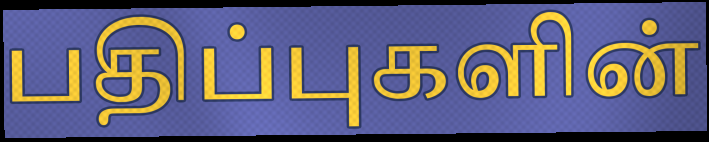
பதிப்புகளின்